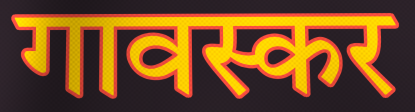
गावस्कर